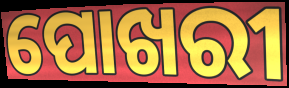
ପୋଖରୀ